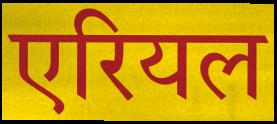
एरियल